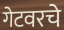
गेटवरचे